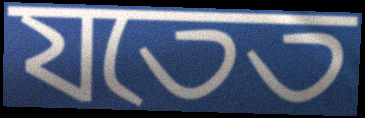
যতেত